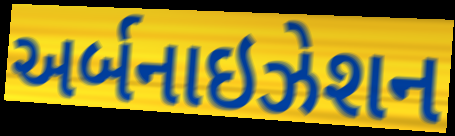
અર્બનાઇઝેશન